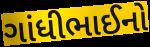
ગાંધીભાઈનો